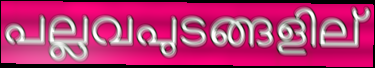
പല്ലവപുടങ്ങളില്